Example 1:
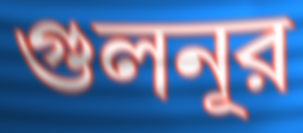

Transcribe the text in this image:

গুলনূর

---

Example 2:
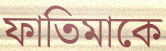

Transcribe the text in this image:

ফাতিমাকে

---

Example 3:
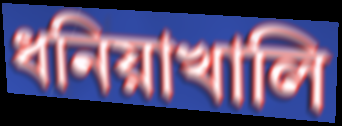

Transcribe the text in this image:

ধনিয়াখালি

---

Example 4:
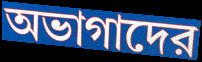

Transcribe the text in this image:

অভাগাদের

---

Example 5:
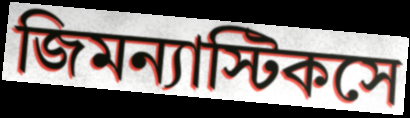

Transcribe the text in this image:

জিমন্যাস্টিকসে